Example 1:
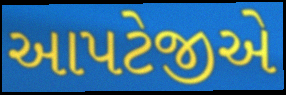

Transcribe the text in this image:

આપટેજીએ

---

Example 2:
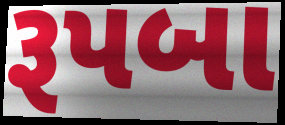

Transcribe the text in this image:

રૂપબા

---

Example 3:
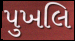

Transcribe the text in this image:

પુખલિ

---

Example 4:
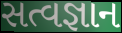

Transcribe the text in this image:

સત્વજ્ઞાન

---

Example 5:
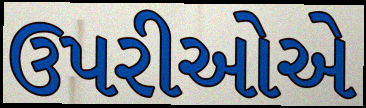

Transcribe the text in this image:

ઉપરીઓએ